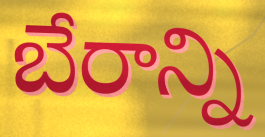
బేరాన్ని